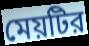
মেয়টির